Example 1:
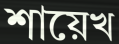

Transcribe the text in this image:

শায়েখ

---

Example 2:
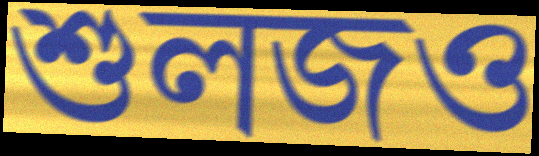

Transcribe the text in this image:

শুলজও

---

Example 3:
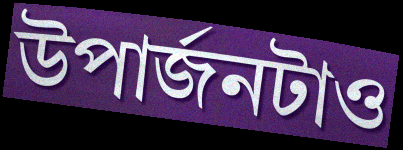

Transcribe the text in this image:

উপার্জনটাও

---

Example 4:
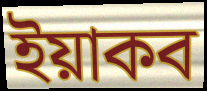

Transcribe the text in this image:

ইয়াকব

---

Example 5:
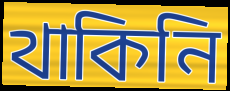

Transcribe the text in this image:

থাকিনি